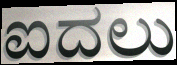
ಐದಲು